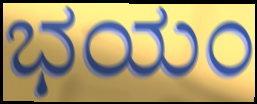
ಭಯಂ